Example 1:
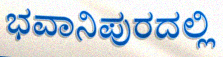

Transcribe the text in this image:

ಭವಾನಿಪುರದಲ್ಲಿ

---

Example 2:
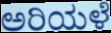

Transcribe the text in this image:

ಅರಿಯಳೆ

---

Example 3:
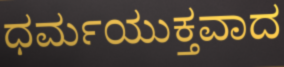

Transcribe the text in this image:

ಧರ್ಮಯುಕ್ತವಾದ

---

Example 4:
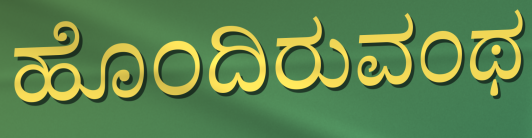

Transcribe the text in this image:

ಹೊಂದಿರುವಂಥ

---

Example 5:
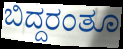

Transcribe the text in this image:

ಬಿದ್ದರಂತೂ